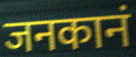
जनकानं